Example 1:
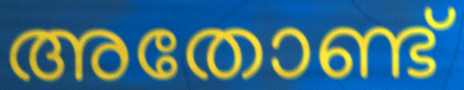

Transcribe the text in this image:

അതോണ്ട്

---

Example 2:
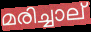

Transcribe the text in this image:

മരിച്ചാല്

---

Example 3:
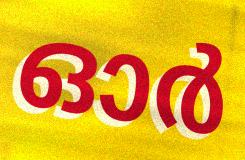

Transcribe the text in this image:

ഓർ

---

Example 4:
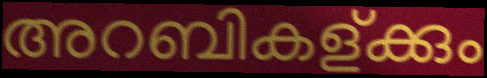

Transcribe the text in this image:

അറബികള്ക്കും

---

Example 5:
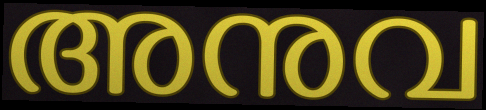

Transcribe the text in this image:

അനുവ